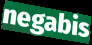
negabis